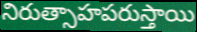
నిరుత్సాహపరుస్తాయి